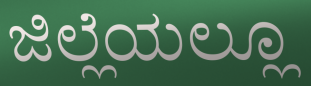
ಜಿಲ್ಲೆಯಲ್ಲೂ